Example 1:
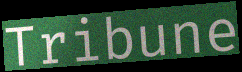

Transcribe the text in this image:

Tribune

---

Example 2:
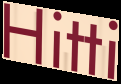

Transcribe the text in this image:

Hitti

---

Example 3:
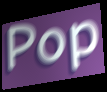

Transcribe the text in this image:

Pop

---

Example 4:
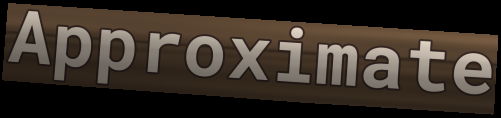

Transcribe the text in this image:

Approximate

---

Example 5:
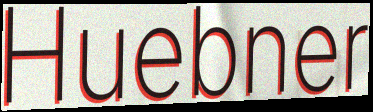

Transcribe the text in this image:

Huebner